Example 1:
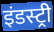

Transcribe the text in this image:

इंडस्‍ट्री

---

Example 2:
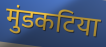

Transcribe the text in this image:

मुंडकटिया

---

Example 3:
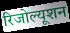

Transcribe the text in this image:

रिजोल्‍यूशन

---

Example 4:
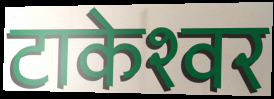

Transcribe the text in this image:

टाकेश्वर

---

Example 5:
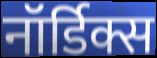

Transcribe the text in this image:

नॉर्डिक्स